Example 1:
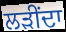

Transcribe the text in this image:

ਲੜੀਂਦਾ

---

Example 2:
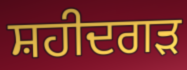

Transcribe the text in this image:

ਸ਼ਹੀਦਗੜ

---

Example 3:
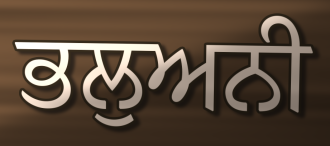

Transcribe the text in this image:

ਭਲੁਅਨੀ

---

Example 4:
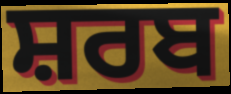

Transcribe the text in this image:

ਸ਼ਰਬ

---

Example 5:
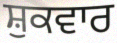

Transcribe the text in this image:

ਸ਼ੁਕਵਾਰ